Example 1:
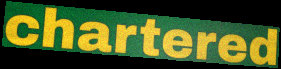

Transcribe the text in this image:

chartered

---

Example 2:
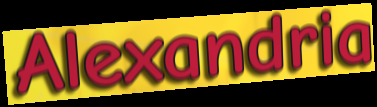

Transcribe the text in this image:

Alexandria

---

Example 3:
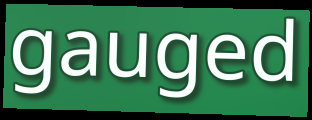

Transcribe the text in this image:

gauged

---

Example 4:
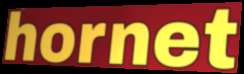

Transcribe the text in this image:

hornet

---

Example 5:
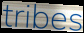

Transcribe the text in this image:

tribes